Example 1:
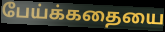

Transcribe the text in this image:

பேய்க்கதையை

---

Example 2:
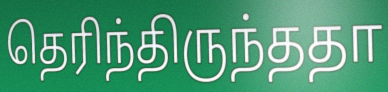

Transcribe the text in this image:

தெரிந்திருந்ததா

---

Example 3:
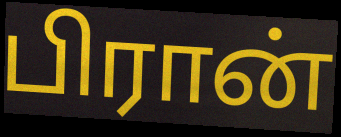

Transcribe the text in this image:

பிரான்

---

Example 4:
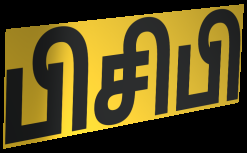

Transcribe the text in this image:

பிசிபி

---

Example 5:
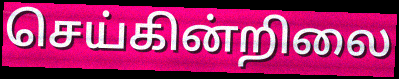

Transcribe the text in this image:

செய்கின்றிலை